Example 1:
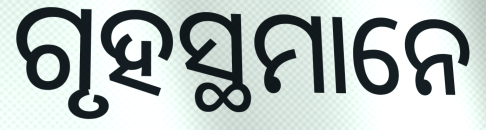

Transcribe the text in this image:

ଗୃହସ୍ଥମାନେ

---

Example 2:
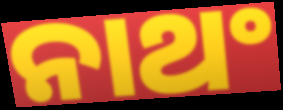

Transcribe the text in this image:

ନାଥଂ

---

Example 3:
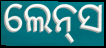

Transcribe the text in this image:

ଲେନ୍‌ସ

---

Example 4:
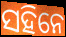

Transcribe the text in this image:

ସହିନେ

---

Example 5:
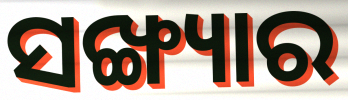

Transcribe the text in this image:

ସଙ୍ଖ୍ୟାର